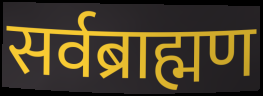
सर्वब्राह्मण